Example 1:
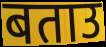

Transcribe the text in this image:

बताउ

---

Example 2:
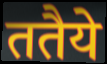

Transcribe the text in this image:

ततैये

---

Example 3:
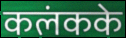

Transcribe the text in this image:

कलंकके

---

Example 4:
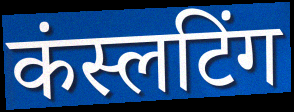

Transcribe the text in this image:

कंस्लटिंग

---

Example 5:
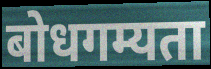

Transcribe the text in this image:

बोधगम्यता